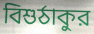
বিশুঠাকুর